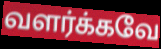
வளர்க்கவே